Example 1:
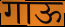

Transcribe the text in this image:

गाऊ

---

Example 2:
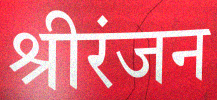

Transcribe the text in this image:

श्रीरंजन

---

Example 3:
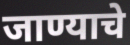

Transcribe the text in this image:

जाण्याचे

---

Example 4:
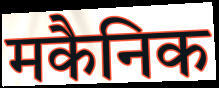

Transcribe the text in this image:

मकैनिक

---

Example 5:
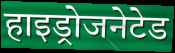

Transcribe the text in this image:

हाइड्रोजनेटेड